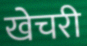
खेचरी